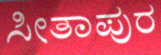
ಸೀತಾಪುರ